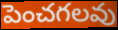
పెంచగలవు